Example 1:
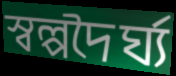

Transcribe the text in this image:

স্বল্পদৈর্ঘ্য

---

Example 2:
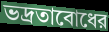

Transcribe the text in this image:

ভদ্রতাবোধের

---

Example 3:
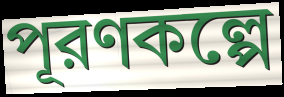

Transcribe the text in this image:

পূরণকল্পে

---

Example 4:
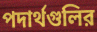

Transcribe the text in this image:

পদার্থগুলির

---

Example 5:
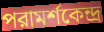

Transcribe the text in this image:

পরামর্শকেন্দ্র